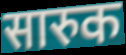
सारुक